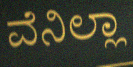
ವೆನಿಲ್ಲಾ